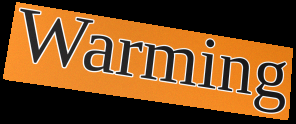
Warming